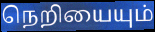
நெறியையும்